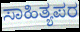
ಸಾಹಿತ್ಯಪರ